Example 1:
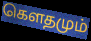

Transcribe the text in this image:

கெளதமும்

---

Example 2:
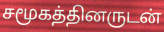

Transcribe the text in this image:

சமூகத்தினருடன்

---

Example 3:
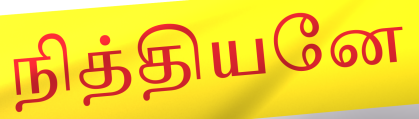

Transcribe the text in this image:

நித்தியனே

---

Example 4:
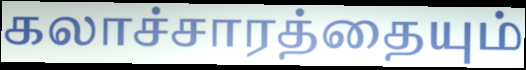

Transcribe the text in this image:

கலாச்சாரத்தையும்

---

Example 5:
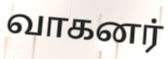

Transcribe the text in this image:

வாகனர்